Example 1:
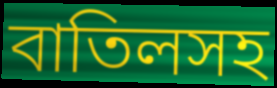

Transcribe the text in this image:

বাতিলসহ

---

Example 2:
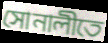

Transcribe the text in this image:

সোনালীতে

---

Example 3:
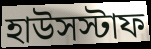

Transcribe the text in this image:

হাউসস্টাফ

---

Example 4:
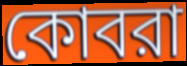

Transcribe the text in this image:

কোবরা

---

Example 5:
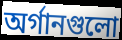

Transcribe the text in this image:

অর্গানগুলো